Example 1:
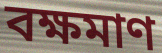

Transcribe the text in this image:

বক্ষমাণ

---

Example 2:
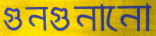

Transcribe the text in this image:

গুনগুনানো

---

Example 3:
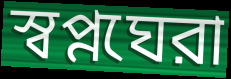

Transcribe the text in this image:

স্বপ্নঘেরা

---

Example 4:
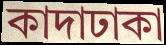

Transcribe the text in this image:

কাদাঢাকা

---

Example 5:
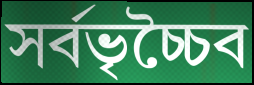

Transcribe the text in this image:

সর্বভৃচ্চৈব